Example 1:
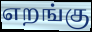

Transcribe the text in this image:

எறங்கு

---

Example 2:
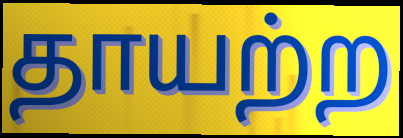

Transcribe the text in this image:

தாயற்ற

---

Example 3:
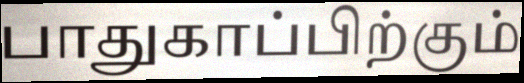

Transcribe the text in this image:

பாதுகாப்பிற்கும்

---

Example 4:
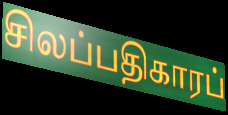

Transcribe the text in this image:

சிலப்பதிகாரப்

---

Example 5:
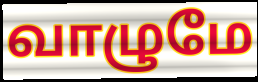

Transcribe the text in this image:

வாழுமே